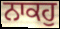
ਨਾਕਹੁ